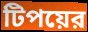
টিপয়ের